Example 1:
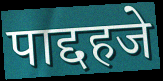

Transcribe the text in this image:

पाद्दहजे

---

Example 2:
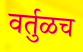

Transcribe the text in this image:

वर्तुळच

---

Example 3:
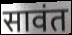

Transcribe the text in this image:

सावंत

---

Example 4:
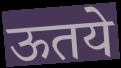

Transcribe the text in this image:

ऊतये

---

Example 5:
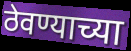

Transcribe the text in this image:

ठेवण्याच्या